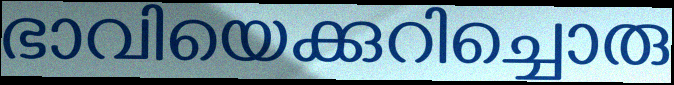
ഭാവിയെക്കുറിച്ചൊരു